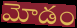
మోడం